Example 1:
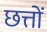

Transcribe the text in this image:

छत्तों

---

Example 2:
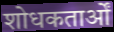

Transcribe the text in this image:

शोधकतार्ओं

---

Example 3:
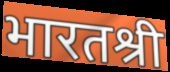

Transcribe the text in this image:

भारतश्री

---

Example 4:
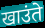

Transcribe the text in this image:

खाउंते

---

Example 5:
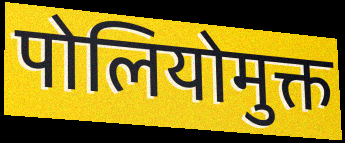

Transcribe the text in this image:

पोलियोमुक्त